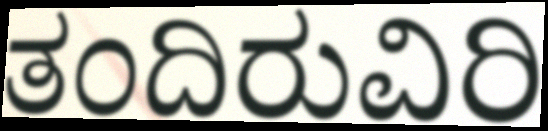
ತಂದಿರುವಿರಿ